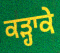
ਕੜ੍ਹਾਕੇ